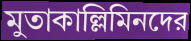
মুতাকাল্লিমিনদের